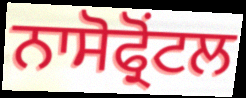
ਨਾਸੋਫ੍ਰੋਂਟਲ